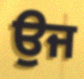
ਉਜ